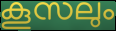
കൂസലും